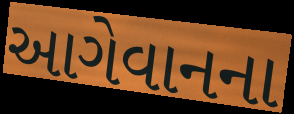
આગેવાનના